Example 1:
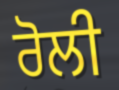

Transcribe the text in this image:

ਰੋਲੀ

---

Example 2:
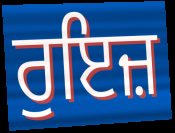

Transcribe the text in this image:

ਰੁਇਜ਼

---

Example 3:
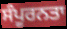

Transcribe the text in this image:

ਸੰਪੂਰਨਤਾ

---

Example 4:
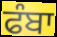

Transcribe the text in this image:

ਫੰਬਾ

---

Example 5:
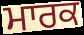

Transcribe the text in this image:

ਮਾਰਕ